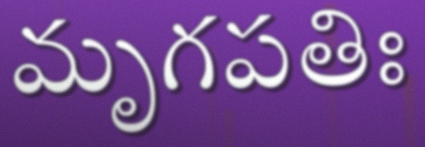
మృగపతిః